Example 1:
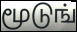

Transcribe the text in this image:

மூடுங்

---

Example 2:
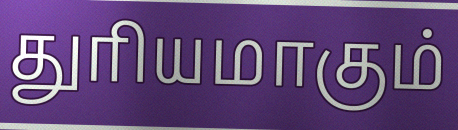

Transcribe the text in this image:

துரியமாகும்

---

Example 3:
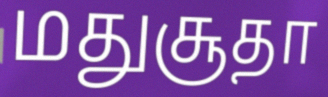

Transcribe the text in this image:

மதுசூதா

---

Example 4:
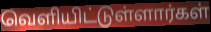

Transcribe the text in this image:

வெளியிட்டுள்ளார்கள்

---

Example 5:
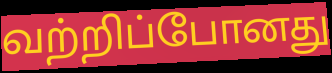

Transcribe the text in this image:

வற்றிப்போனது